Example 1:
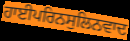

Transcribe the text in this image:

ਹਾਈਪਰਿਨਸੁਲਿਨਵਾਦ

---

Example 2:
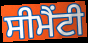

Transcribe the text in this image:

ਸੀਮੈਂਟੀ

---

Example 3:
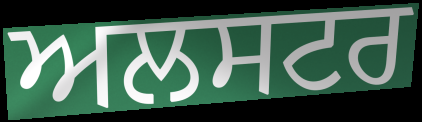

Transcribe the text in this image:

ਅਲਸਟਰ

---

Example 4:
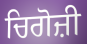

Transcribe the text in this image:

ਚਿਗੋਜ਼ੀ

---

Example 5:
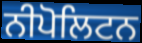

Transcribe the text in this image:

ਨੀਪੋਲਿਟਨ